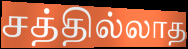
சத்தில்லாத